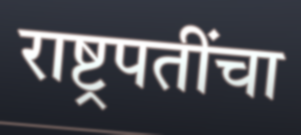
राष्ट्रपतींचा